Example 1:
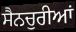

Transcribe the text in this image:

ਸੈਨਚੁਰੀਆਂ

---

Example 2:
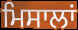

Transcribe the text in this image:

ਮਿਸਾਲਾਂ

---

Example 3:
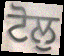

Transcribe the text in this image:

ਟੋਲੁ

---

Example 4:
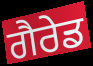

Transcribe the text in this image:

ਗੈਰੇਡ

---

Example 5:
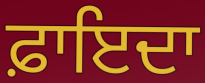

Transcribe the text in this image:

ਫ਼ਾਇਦਾ